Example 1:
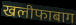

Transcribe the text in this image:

खलीफाबाग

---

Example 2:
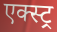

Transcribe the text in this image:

एक्स्ट्र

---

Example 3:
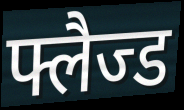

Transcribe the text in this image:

फ्लैज्ड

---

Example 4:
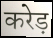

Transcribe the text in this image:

करेड़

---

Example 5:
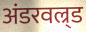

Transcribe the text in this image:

अंडरवल्र्ड